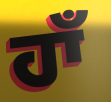
ਹਾਁ